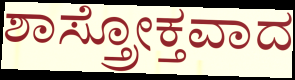
ಶಾಸ್ತ್ರೋಕ್ತವಾದ